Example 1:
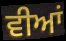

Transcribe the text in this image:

ਵੀਆਂ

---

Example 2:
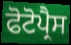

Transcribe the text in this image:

ਫੋਟੋਪ੍ਰੈਸ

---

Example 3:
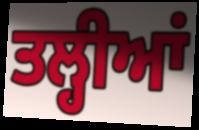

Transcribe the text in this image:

ਤਲ੍ਹੀਆਂ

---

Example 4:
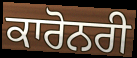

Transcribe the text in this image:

ਕਾਰੋਨਰੀ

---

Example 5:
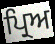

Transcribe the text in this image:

ਪ੍ਰਿਅ